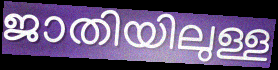
ജാതിയിലുള്ള